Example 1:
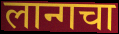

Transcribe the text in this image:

लान्गचा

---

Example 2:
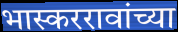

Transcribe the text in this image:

भास्कररावांच्या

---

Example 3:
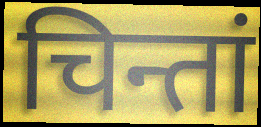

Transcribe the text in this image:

चिन्तां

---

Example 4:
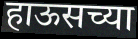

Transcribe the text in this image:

हाऊसच्या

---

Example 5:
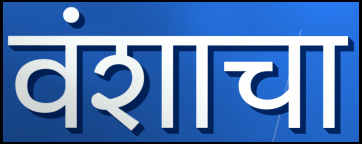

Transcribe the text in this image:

वंशाचा